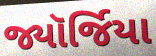
જ્યૉર્જિયા